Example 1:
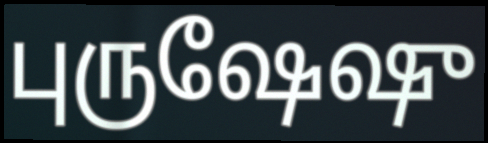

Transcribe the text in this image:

புருஷேஷு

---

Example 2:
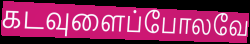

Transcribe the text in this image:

கடவுளைப்போலவே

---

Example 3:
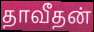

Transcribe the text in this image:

தாவீதன்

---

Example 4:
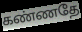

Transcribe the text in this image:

கண்ணதே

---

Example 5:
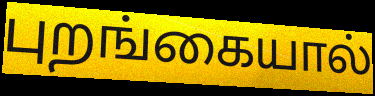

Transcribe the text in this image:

புறங்கையால்